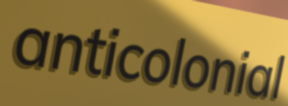
anticolonial